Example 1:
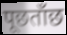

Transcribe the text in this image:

पूछताँछ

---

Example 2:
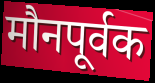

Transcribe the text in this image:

मौनपूर्वक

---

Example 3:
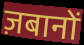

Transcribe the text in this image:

ज़बानों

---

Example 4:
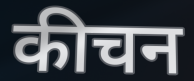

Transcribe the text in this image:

कीचन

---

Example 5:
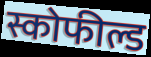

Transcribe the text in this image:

स्कोफील्ड